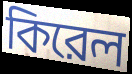
কিরেল